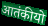
आतंकीयो